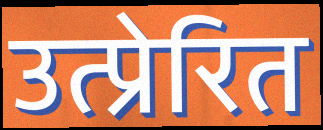
उत्प्रेरित